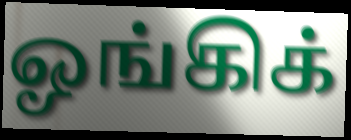
ஓங்கிக்